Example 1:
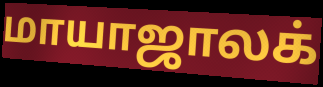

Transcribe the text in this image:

மாயாஜாலக்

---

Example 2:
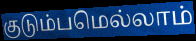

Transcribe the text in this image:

குடும்பமெல்லாம்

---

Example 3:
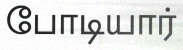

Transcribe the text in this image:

போடியார்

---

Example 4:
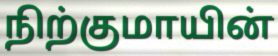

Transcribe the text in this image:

நிற்குமாயின்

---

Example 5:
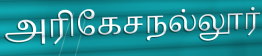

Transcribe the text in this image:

அரிகேசநல்லூர்